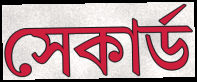
সেকার্ড